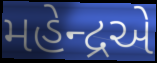
મહેન્દ્રએ